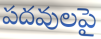
పదవులపై